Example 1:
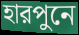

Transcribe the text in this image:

হারপুনে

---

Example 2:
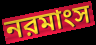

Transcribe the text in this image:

নরমাংস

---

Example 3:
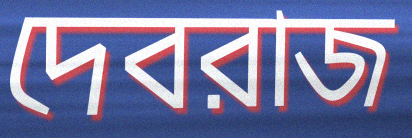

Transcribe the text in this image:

দেবরাজ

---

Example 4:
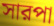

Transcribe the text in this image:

সারপা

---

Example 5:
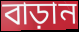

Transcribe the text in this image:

বাড়ান